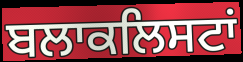
ਬਲਾਕਲਿਸਟਾਂ